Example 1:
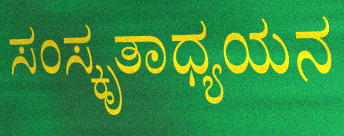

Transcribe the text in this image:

ಸಂಸ್ಕೃತಾಧ್ಯಯನ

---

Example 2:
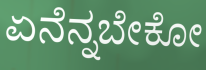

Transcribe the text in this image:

ಏನೆನ್ನಬೇಕೋ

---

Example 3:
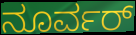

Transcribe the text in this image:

ನೂರ್ವರ್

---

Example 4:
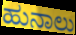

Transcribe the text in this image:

ಹುನಾಲು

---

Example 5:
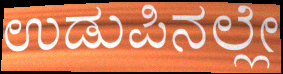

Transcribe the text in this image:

ಉಡುಪಿನಲ್ಲೇ